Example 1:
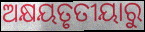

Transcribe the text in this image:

ଅକ୍ଷୟତୃତୀୟାରୁ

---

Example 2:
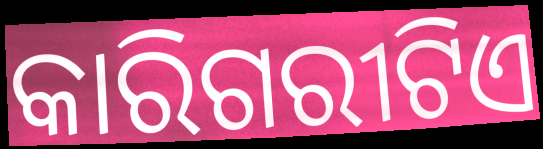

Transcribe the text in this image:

କାରିଗରୀଟିଏ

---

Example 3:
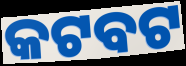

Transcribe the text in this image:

କଟବଟ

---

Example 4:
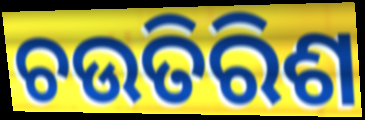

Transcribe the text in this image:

ଚଉତିରିଶ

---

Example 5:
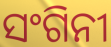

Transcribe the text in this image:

ସଂଗିନୀ